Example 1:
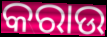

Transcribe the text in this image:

କରାଉ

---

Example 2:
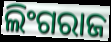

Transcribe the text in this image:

ଲିଂଗରାଜ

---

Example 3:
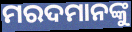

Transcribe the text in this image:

ମରଦମାନଙ୍କୁ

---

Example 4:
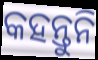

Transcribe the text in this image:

କହନ୍ତୁନି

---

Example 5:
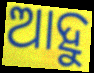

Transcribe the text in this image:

ଆହୁ